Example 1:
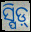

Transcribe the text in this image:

ସ୍ପିଡ଼୍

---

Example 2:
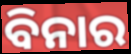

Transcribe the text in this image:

ବିନାର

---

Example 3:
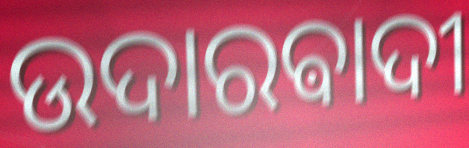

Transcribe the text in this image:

ଉଦାରଵାଦୀ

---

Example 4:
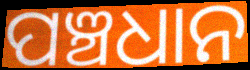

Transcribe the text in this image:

ପଞ୍ଚଧାନ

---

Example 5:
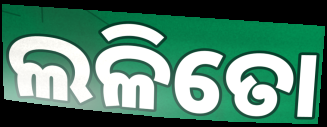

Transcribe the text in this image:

ଲଳିତୋ